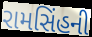
રામસિંહની